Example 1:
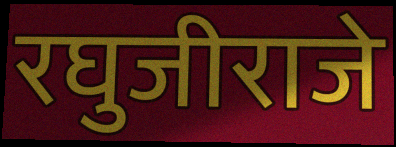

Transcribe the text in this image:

रघुजीराजे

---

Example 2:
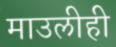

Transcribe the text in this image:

माउलीही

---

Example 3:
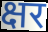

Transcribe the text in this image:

क्षर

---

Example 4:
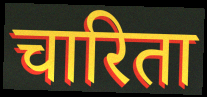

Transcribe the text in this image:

चारिता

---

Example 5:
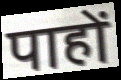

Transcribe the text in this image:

पाहों